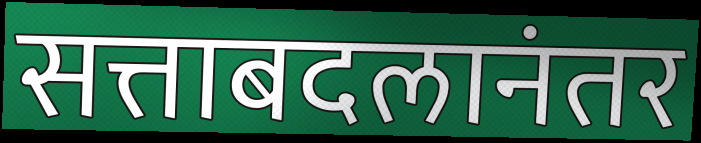
सत्ताबदलानंतर